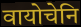
वायोचेनि